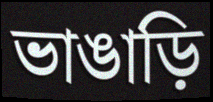
ভাঙাড়ি